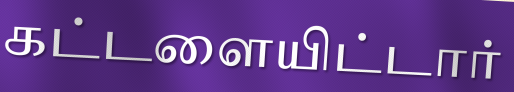
கட்டளையிட்டார்